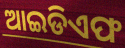
ଆଇଡିଏଫ